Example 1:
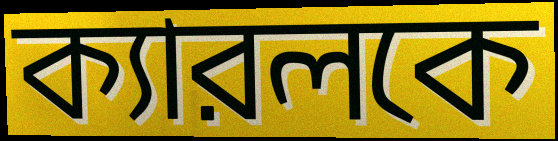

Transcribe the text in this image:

ক্যারলকে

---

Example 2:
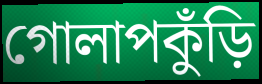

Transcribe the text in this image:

গোলাপকুঁড়ি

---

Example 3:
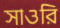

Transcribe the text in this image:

সাওরি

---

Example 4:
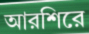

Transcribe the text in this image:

আরশিরে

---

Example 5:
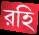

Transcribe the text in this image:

রহি